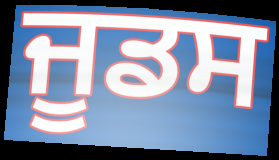
ਜੂਡਸ